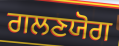
ਗਲਣਯੋਗ